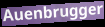
Auenbrugger